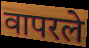
वापरले